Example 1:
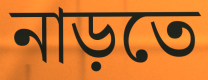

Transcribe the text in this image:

নাড়তে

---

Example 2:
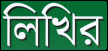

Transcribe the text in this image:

লিখির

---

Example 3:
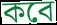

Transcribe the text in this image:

কবে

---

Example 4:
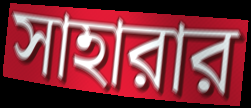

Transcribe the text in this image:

সাহারার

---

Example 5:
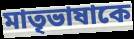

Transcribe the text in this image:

মাতৃভাষাকে